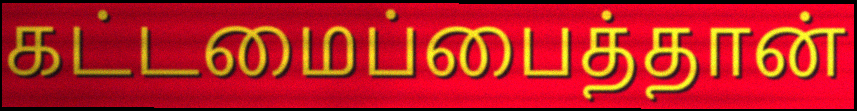
கட்டமைப்பைத்தான்